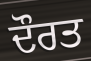
ਦੌਰਤ